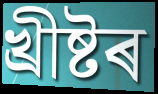
খ্ৰীষ্টৰ